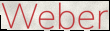
Weber